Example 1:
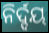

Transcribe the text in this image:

ନିର୍ଦ୍ଦୟ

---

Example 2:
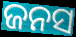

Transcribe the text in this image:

ଜନସ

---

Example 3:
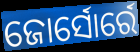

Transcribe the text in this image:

ଜୋର୍ସୋର୍ରେ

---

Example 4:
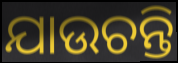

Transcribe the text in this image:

ଯାଉଚନ୍ତି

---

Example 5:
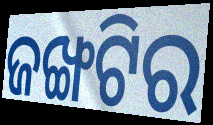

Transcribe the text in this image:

ଜଙ୍ଖଟିର